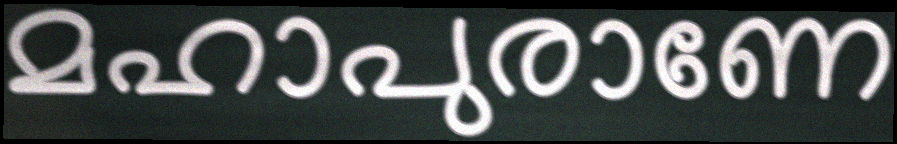
മഹാപുരാണേ